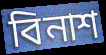
বিনাশ